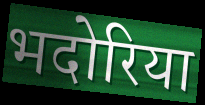
भदोरिया